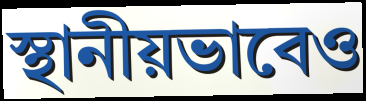
স্থানীয়ভাবেও